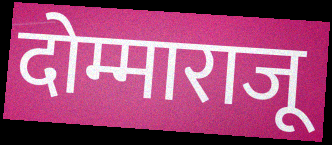
दोम्माराजू